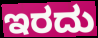
ಇರದು